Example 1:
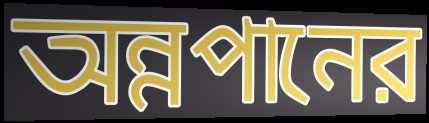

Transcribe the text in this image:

অন্নপানের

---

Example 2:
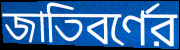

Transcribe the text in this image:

জাতিবর্ণের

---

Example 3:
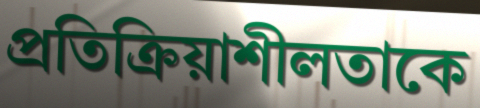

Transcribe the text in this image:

প্রতিক্রিয়াশীলতাকে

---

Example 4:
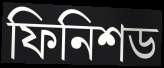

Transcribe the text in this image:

ফিনিশড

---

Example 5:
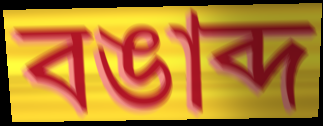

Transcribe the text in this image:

বঙাব্দ